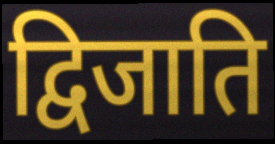
द्विजाति